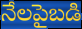
నేలపైబడి